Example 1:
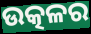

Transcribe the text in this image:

ଉତ୍କଳର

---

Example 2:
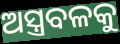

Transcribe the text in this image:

ଅସ୍ତ୍ରବଳକୁ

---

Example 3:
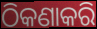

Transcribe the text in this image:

ଠିକଣାକରି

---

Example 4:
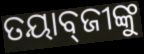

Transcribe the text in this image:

ତୟାବ୍‌ଜୀଙ୍କୁ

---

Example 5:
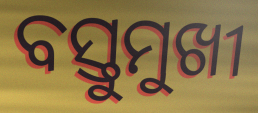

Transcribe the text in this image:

ବସ୍ତୁମୁଖୀ